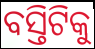
ବସ୍ତିଟିକୁ